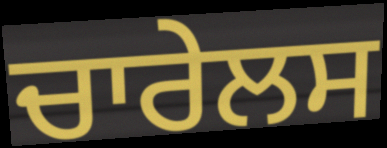
ਚਾਰੇਲਸ